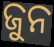
ଜୁନ